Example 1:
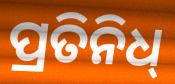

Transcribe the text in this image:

ପ୍ରତିନିଧ୍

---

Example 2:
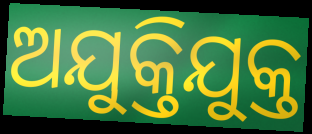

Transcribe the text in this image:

ଅଯୁକ୍ତିଯୁକ୍ତ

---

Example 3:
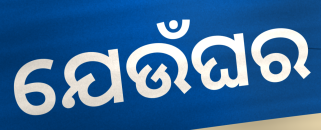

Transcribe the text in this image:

ଯେଉଁଘର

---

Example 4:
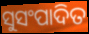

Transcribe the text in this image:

ସୁସଂପାଦିତ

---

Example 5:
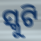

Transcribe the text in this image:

ସ୍କୁଟି